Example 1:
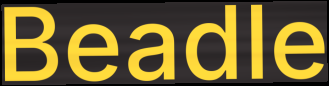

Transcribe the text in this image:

Beadle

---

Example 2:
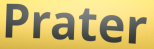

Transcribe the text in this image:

Prater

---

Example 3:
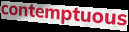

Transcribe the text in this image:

contemptuous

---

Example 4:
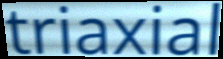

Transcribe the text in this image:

triaxial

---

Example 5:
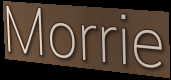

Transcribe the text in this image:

Morrie